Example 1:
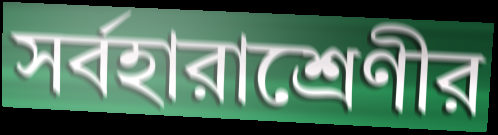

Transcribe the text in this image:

সর্বহারাশ্রেণীর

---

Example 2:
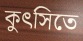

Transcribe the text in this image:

কুৎসিতে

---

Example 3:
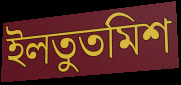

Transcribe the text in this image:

ইলতুতমিশ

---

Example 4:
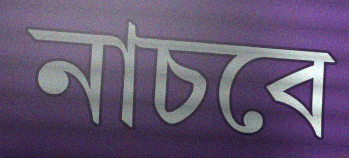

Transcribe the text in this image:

নাচবে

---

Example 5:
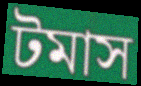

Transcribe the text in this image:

টমাস